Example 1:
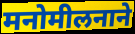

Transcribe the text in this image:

मनोमीलनाने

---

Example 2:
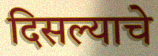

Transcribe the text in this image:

दिसल्याचे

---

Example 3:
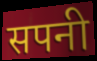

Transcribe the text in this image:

सपनी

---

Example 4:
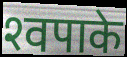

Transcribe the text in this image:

श्वपाके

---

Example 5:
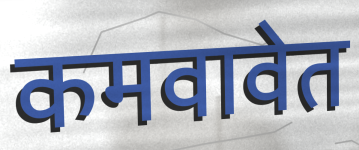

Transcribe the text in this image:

कमवावेत